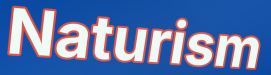
Naturism